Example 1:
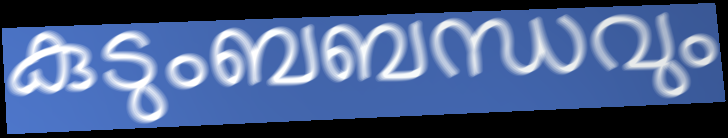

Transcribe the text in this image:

കുടുംബബന്ധവും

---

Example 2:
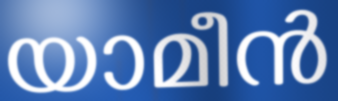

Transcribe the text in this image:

യാമീൻ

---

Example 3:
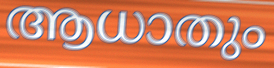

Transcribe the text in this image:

ആധാതും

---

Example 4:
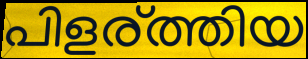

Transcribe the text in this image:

പിളര്ത്തിയ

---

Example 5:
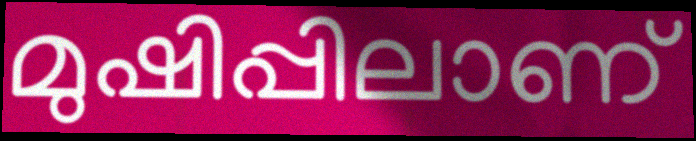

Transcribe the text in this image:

മുഷിപ്പിലാണ്